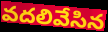
వదలివేసిన